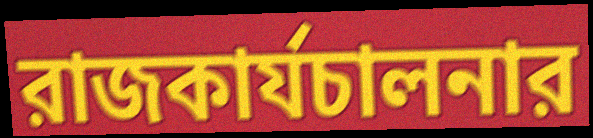
রাজকার্যচালনার